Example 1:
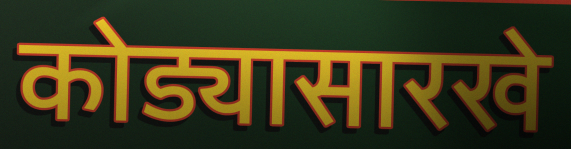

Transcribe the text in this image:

कोड्यासारखे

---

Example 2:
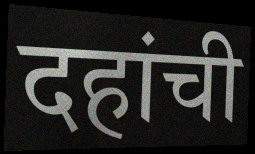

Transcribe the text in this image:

दहांची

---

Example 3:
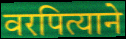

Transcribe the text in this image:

वरपित्याने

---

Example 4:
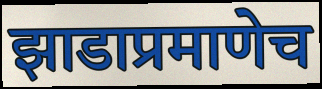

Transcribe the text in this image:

झाडाप्रमाणेच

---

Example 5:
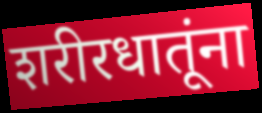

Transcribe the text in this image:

शरीरधातूंना